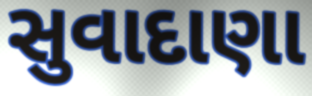
સુવાદાણા